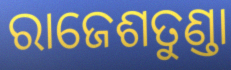
ରାଜେଶତୁଣ୍ଡା